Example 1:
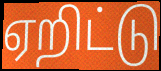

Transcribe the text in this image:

ஏறிட்டு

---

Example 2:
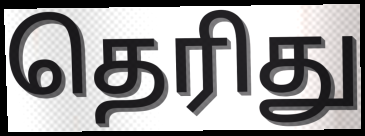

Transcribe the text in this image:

தெரிது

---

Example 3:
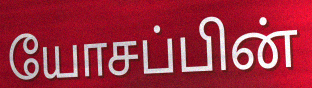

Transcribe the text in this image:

யோசப்பின்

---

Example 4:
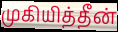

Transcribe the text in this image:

முகியித்தீன்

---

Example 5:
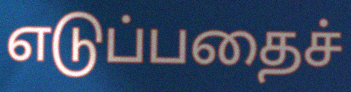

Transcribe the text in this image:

எடுப்பதைச்